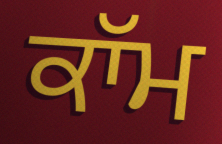
ਕਾੱਮ